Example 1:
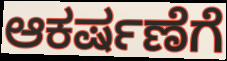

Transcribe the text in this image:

ಆಕರ್ಷಣೆಗೆ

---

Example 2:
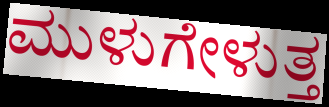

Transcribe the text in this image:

ಮುಳುಗೇಳುತ್ತ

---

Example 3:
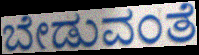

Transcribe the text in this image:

ಬೇಡುವಂತೆ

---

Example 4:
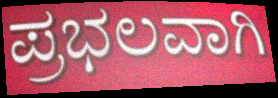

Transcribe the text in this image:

ಪ್ರಭಲವಾಗಿ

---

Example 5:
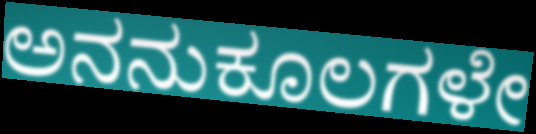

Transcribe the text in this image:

ಅನನುಕೂಲಗಳೇ